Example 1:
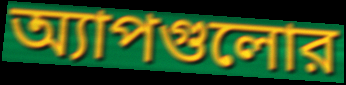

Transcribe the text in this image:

অ্যাপগুলোর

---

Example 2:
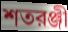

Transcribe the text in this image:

শতরঞ্জী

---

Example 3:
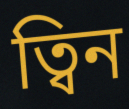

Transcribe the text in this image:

ত্বিন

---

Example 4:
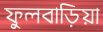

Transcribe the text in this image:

ফুলবাড়িয়া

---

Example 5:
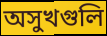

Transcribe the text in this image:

অসুখগুলি